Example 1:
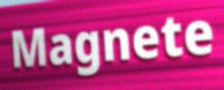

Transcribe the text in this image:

Magnete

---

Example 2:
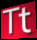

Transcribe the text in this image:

Tt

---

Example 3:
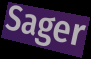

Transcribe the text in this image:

Sager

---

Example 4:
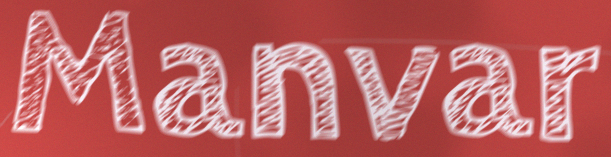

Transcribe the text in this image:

Manvar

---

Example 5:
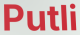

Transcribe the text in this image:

Putli